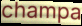
champa